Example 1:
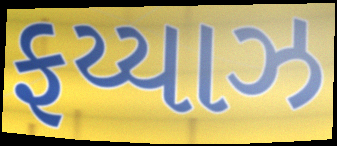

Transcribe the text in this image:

ફય્યાઝ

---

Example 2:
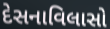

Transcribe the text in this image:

દેસનાવિલાસો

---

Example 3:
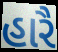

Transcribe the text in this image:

હારૈ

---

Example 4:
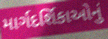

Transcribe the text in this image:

માર્ગદર્શિકાઓનું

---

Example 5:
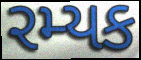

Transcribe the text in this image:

રમ્યક